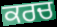
ਕਰਚ